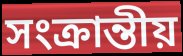
সংক্ৰান্তীয়